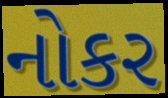
નોકર